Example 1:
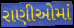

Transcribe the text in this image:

રાણીઓમાં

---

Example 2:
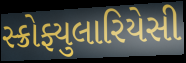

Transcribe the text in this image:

સ્ક્રોફ્યુલારિયેસી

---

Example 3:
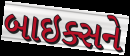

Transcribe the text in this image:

બાઇક્સને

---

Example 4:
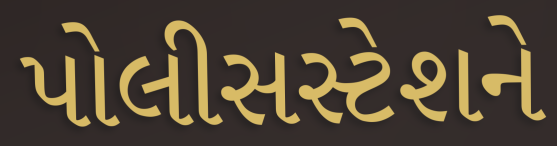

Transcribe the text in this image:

પોલીસસ્ટેશને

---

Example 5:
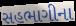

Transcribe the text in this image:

સહભાગીના